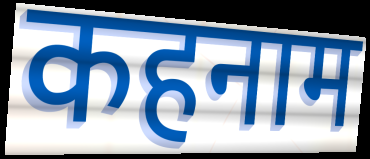
कहनाम